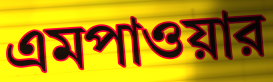
এমপাওয়ার